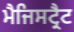
ਮੈਜਿਸਟ੍ਰੈਟ